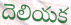
దెలియక